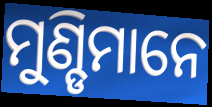
ମୁଣ୍ଡିମାନେ